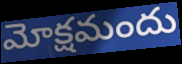
మోక్షమందు